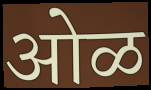
ओळ